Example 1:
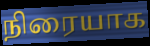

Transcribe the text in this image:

நிரையாக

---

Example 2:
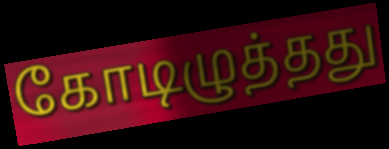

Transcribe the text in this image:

கோடிழுத்தது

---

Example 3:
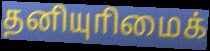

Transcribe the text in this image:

தனியுரிமைக்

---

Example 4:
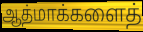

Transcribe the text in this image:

ஆத்மாக்களைத்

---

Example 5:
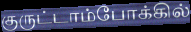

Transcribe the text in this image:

குருட்டாம்போக்கில்